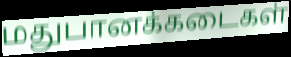
மதுபானக்கடைகள்